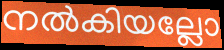
നൽകിയല്ലോ